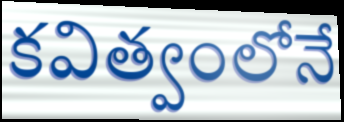
కవిత్వంలోనే